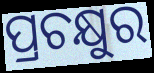
ପ୍ରଚକ୍ଷୁର